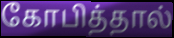
கோபித்தால்